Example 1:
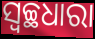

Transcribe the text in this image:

ସ୍ୱଚ୍ଛଧାରା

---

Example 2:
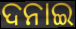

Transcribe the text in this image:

ଦନାଇ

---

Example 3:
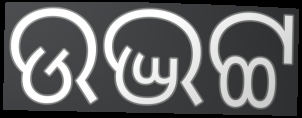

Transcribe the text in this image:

ଉଦ୍ଭଟ୍ଟ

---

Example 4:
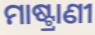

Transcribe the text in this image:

ମାଷ୍ଟ୍ରାଣୀ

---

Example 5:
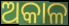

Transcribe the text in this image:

ଅକାଳ